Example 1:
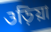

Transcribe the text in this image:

ওড়িয়া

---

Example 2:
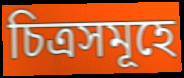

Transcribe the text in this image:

চিত্ৰসমূহে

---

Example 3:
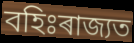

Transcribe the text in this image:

বহিঃৰাজ্যত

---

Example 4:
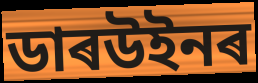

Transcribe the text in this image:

ডাৰউইনৰ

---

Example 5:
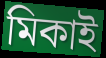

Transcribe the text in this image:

মিকাই